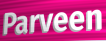
Parveen